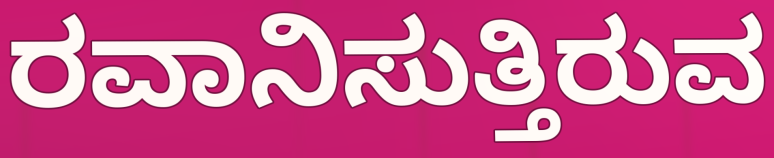
ರವಾನಿಸುತ್ತಿರುವ